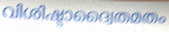
വിശിഷ്ടാദ്വൈതമതം